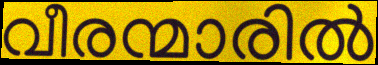
വീരന്മാരിൽ